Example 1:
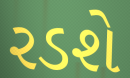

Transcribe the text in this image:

રડશે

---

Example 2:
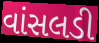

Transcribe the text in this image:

વાંસલડી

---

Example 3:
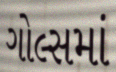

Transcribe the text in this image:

ગોલ્સમાં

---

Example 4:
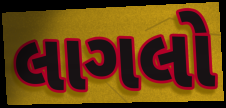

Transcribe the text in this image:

લાગલો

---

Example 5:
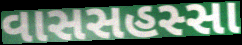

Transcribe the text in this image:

વાસસહસ્સા